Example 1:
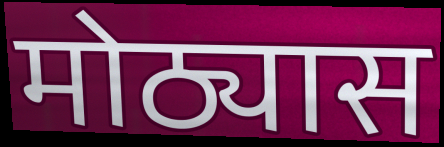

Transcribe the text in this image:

मोठ्यास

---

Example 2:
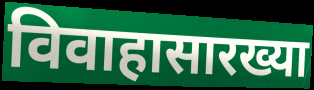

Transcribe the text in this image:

विवाहासारख्या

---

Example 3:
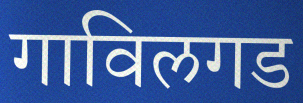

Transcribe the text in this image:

गाविलगड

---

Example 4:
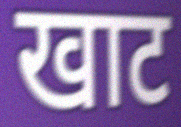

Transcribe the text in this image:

खाट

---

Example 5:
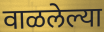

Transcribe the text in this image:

वाळलेल्या